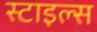
स्टाइल्स